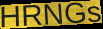
HRNGs